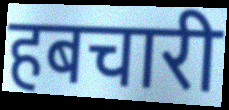
हबचारी